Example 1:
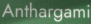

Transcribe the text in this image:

Anthargami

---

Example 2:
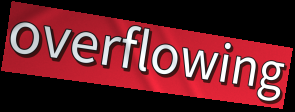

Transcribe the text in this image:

overflowing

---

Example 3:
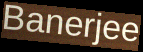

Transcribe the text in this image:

Banerjee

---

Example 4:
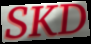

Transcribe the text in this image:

SKD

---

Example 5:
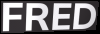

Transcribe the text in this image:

FRED